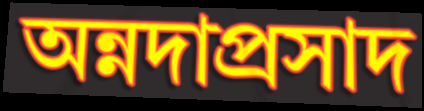
অন্নদাপ্রসাদ